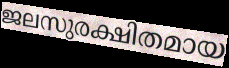
ജലസുരക്ഷിതമായ